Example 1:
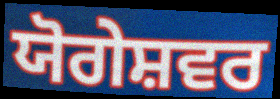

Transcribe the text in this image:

ਯੋਗੇਸ਼ਵਰ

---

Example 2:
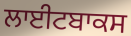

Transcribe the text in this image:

ਲਾਈਟਬਾਕਸ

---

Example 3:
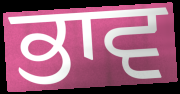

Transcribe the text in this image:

ਭਾਵ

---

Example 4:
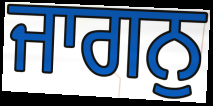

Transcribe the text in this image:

ਜਾਗਨੁ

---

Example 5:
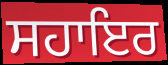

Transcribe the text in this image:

ਸਹਾਇਰ